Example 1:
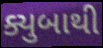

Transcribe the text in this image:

ક્યુબાથી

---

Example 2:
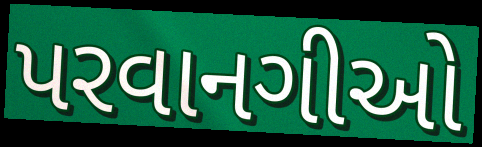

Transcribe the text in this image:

પરવાનગીઓ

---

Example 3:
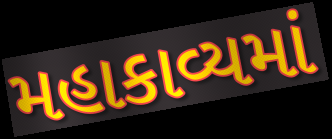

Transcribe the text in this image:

મહાકાવ્યમાં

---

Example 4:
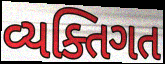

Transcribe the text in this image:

વ્યક્તિગત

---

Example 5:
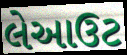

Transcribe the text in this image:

લેઆઉટ